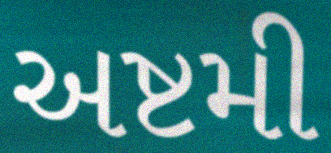
અષ્ટમી